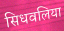
सिधवलिया